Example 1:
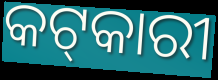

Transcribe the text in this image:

କଟ୍‌କାରୀ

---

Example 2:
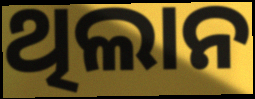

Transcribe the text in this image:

ଥିଲାନ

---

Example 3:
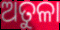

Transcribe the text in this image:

ଅତୁଳା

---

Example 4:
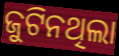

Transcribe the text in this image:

ଜୁଟିନଥିଲା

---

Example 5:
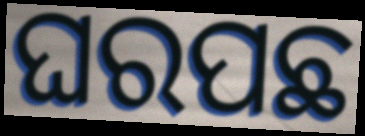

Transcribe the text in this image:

ଘରପଛ